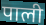
पाली